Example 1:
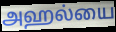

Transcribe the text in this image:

அஹல்யை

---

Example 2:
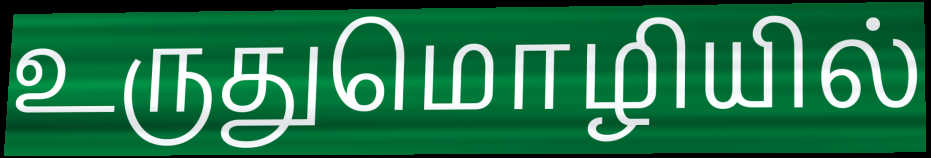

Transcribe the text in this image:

உருதுமொழியில்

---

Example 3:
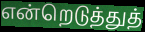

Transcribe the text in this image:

என்றெடுத்துத்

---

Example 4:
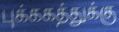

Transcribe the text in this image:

புக்ககத்துக்கு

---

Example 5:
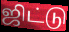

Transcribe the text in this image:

ஜிட்டு